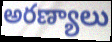
అరణ్యాలు